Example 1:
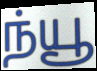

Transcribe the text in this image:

ந்யூ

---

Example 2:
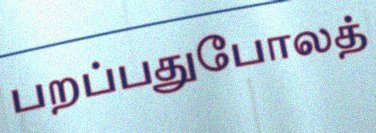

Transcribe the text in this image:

பறப்பதுபோலத்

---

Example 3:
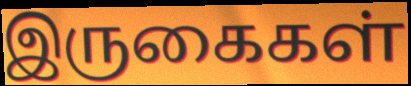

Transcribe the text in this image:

இருகைகள்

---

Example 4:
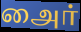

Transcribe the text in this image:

அைர்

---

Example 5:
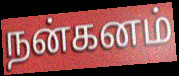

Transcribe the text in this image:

நன்கனம்